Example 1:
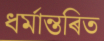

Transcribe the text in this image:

ধৰ্মান্তৰিত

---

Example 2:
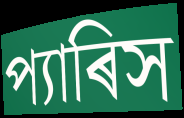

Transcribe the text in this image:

প্যাৰিস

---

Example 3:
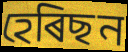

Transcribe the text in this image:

হেৰিছন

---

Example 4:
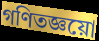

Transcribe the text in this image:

গণিতজ্ঞয়ো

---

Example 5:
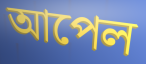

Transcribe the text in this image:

আপেল